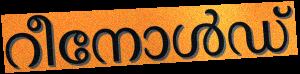
റീനോൾഡ്